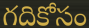
గదికోసం